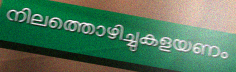
നിലത്തൊഴിച്ചുകളയണം